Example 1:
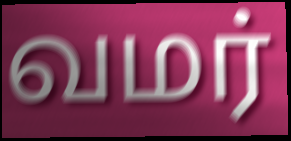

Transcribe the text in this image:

வமர்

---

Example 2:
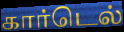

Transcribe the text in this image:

கார்டெல்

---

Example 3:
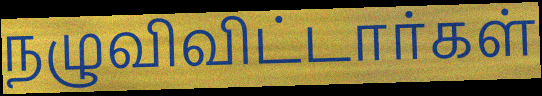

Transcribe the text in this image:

நழுவிவிட்டார்கள்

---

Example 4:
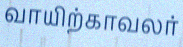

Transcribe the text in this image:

வாயிற்காவலர்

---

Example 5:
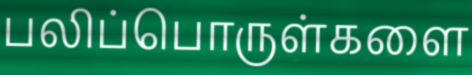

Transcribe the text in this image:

பலிப்பொருள்களை